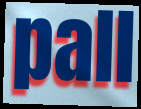
pall